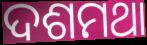
ଦଶମଥା